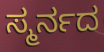
ಸ್ಮರ್ನದ